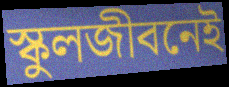
স্কুলজীবনেই